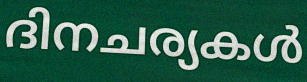
ദിനചര്യകൾ